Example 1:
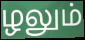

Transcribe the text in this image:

ழலும்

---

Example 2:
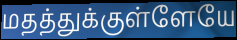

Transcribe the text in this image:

மதத்துக்குள்ளேயே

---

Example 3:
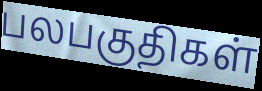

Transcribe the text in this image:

பலபகுதிகள்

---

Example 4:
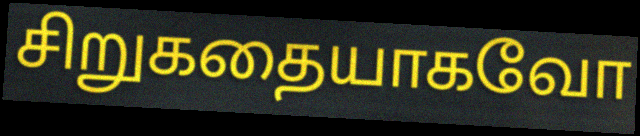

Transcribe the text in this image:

சிறுகதையாகவோ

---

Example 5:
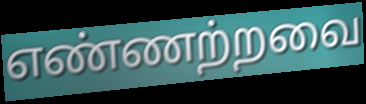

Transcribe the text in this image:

எண்ணற்றவை